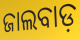
ଜାଲବାଡ଼